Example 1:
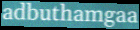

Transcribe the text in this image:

adbuthamgaa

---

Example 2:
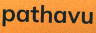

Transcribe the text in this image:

pathavu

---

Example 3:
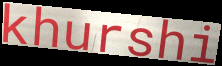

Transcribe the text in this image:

khurshi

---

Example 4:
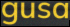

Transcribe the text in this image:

gusa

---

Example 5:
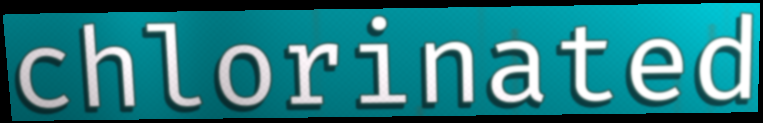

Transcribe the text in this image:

chlorinated